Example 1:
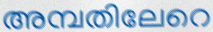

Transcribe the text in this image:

അമ്പതിലേറെ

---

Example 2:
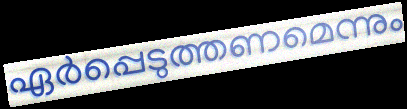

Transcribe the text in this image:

ഏർപ്പെടുത്തണമെന്നും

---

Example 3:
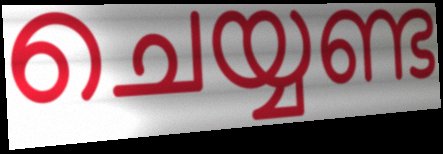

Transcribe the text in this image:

ചെയ്യണ്ട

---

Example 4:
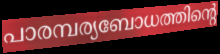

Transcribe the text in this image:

പാരമ്പര്യബോധത്തിന്റെ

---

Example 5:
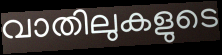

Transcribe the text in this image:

വാതിലുകളുടെ